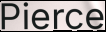
Pierce